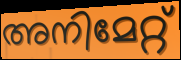
അനിമേറ്റ്